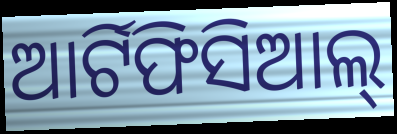
ଆର୍ଟିଫିସିଆଲ୍